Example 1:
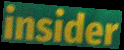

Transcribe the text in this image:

insider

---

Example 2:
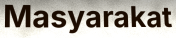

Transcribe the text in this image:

Masyarakat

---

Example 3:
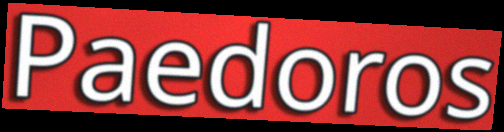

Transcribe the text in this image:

Paedoros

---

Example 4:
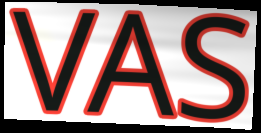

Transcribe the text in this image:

VAS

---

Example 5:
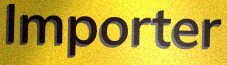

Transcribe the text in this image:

Importer